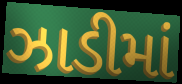
ઝાડીમાં